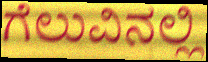
ಗೆಲುವಿನಲ್ಲಿ